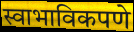
स्वाभाविकपणे